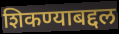
शिकण्याबद्दल